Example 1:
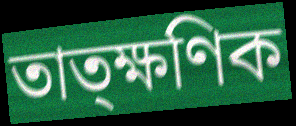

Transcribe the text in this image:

তাত্ক্ষণিক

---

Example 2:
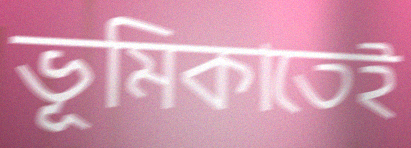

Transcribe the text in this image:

ভূমিকাতেই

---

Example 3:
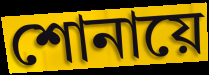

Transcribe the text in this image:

শোনায়ে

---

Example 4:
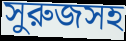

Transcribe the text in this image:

সুরুজসহ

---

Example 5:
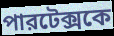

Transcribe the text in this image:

পারটেক্সকে